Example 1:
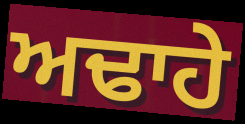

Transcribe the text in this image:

ਅਢਾਹੇ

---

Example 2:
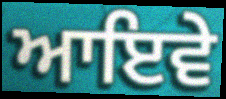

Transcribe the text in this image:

ਆਇਵੇ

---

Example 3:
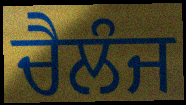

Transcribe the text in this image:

ਚੈਲੰਜ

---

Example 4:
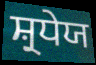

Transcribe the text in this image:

ਸ਼੍ਰਧੇਯ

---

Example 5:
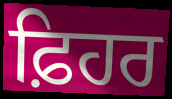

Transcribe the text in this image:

ਫ਼ਿਹਰ